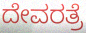
ದೇವರತ್ರೆ